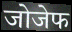
जोजेफ